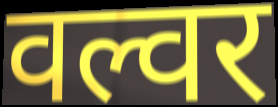
वल्वर